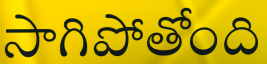
సాగిపోతోంది